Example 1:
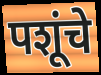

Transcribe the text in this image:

पशूंचे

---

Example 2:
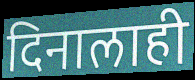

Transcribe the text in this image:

दिनालाही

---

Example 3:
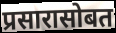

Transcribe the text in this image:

प्रसारासोबत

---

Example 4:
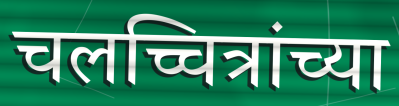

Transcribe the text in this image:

चलच्चित्रांच्या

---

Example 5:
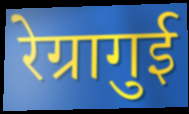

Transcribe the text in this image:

रेग्रागुई